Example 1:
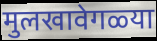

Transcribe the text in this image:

मुलखावेगळ्या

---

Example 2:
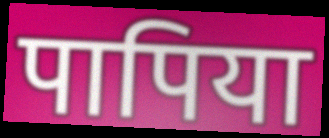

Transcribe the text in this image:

पापिया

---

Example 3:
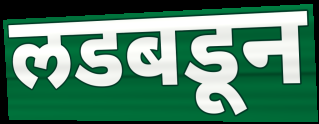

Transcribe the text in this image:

लडबडून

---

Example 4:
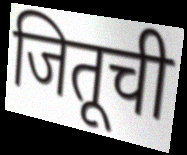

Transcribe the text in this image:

जितूची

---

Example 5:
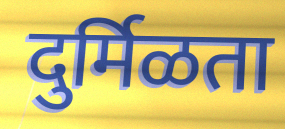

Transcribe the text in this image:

दुर्मिळता